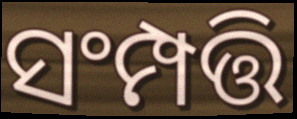
ସଂମ୍ପତ୍ତି